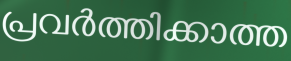
പ്രവർത്തിക്കാത്ത